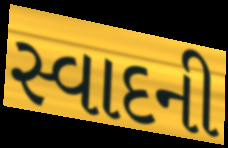
સ્વાદની